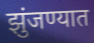
झुंजण्यात